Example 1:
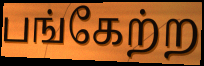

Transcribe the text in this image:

பங்கேற்ற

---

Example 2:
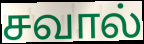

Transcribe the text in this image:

சவால்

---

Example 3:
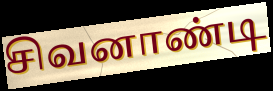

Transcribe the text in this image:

சிவனாண்டி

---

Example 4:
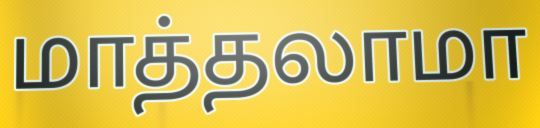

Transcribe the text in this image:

மாத்தலாமா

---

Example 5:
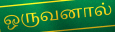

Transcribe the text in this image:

ஒருவனால்